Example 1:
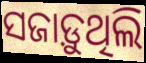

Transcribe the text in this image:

ସଜାଡ଼ୁଥିଲି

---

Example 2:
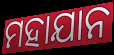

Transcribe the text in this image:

ମହାଯାନ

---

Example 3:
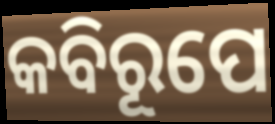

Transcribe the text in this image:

କବିରୂପେ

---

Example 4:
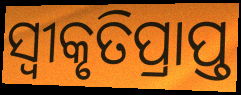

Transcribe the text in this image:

ସ୍ବୀକୃତିପ୍ରାପ୍ତ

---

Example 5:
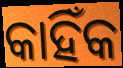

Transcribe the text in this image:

କାହିଁକ